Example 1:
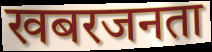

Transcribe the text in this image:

खबरजनता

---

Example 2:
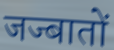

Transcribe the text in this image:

जज्बातों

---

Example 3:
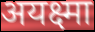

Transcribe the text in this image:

अयक्ष्मा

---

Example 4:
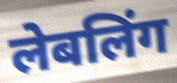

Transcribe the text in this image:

लेबलिंग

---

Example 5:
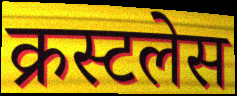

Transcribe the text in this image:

क्रस्टलेस